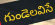
గుండెలవిసే